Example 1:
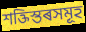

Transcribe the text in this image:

শক্তিস্তৰসমূহ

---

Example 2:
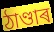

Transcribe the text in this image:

ঠাণ্ডাৰ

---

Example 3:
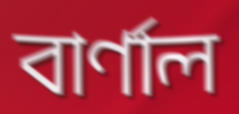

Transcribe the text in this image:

বাৰ্ণাল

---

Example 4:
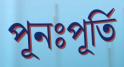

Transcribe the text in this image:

পূনঃপূৰ্তি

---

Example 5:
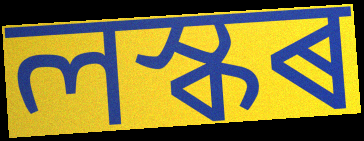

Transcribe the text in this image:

লস্কৰ